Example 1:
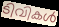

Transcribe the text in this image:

ടിവികൾ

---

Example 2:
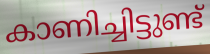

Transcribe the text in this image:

കാണിച്ചിട്ടുണ്ട്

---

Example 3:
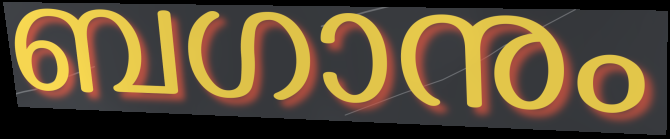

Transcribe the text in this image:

ബഗാനും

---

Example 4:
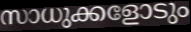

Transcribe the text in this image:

സാധുക്കളോടും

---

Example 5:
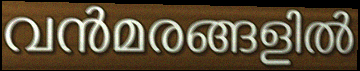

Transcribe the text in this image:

വൻമരങ്ങളിൽ